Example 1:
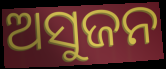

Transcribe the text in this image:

ଅସୁଜନ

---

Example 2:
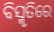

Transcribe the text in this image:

ବିସ୍ମୃତିରେ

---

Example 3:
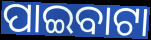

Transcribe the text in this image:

ପାଇବାଟା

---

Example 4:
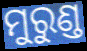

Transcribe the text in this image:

ମୁରୁଣ୍ଡ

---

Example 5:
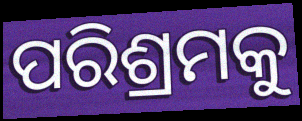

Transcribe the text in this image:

ପରିଶ୍ରମକୁ